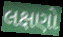
લક્ષણો